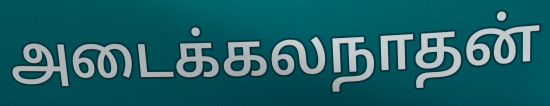
அடைக்கலநாதன்